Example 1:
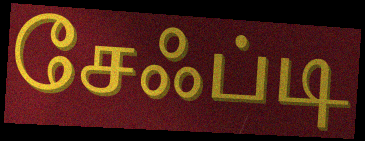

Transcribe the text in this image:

சேஃப்டி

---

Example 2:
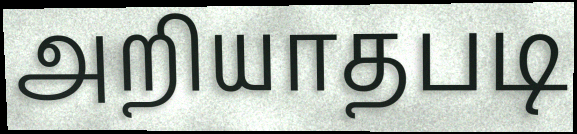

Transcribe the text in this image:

அறியாதபடி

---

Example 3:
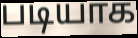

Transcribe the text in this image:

படியாக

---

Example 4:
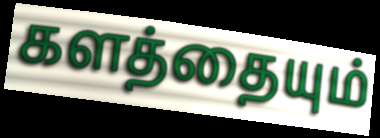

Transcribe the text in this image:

களத்தையும்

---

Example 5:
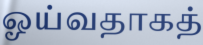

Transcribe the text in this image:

ஓய்வதாகத்